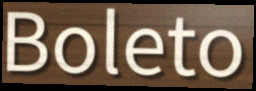
Boleto